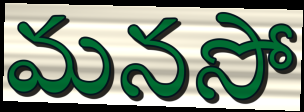
మనసో